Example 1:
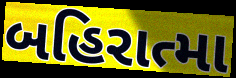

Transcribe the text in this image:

બહિરાત્મા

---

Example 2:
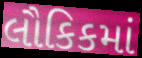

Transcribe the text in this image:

લૌકિકમાં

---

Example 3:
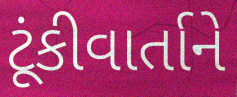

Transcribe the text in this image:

ટૂંકીવાર્તાને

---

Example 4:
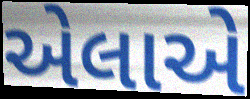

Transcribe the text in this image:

એલાએ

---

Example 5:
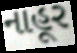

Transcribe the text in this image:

નાહૂર